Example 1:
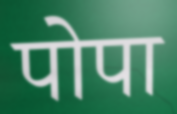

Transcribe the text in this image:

पोपा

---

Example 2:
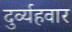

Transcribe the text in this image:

दुर्व्यहवार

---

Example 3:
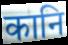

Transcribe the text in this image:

कानि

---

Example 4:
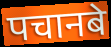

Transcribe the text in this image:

पचानबे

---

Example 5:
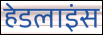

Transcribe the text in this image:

हेडलाइंस